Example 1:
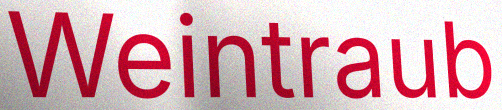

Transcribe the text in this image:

Weintraub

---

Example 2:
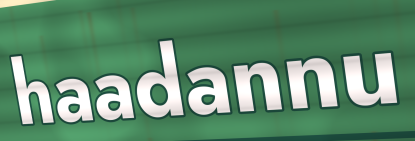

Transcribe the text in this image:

haadannu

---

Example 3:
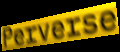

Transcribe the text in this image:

Perverse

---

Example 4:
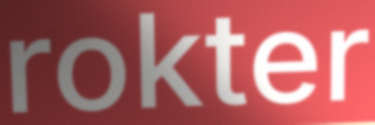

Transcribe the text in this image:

rokter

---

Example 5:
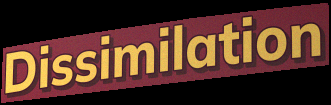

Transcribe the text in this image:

Dissimilation